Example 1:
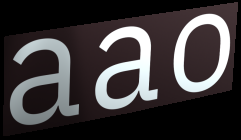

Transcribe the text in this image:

aao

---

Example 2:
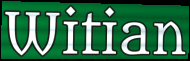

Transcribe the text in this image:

Witian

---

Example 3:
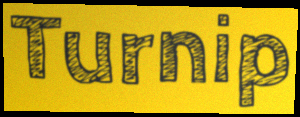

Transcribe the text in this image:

Turnip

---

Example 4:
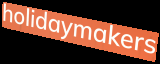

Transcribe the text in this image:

holidaymakers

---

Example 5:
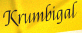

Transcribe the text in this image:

Krumbigal